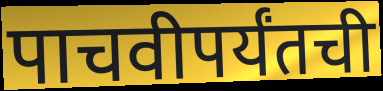
पाचवीपर्यंतची